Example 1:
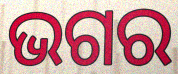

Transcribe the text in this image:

ଭଗର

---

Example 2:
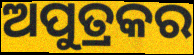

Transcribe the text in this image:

ଅପୁତ୍ରକର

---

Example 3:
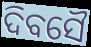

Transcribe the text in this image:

ଦିବସୈ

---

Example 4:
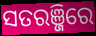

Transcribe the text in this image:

ସତରଞ୍ଜିରେ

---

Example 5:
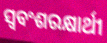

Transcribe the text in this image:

ସ୍ବବଂଶରକ୍ଷାର୍ଥୀ